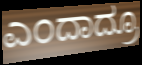
ಎಂದಾದ್ರೂ